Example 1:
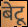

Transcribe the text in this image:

बेटू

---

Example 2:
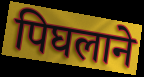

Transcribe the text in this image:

पिघलाने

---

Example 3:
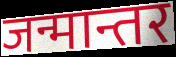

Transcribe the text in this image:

जन्मान्तर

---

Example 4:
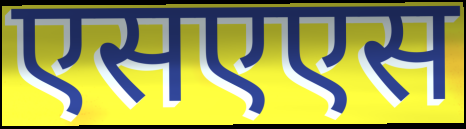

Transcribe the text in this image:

एसएएस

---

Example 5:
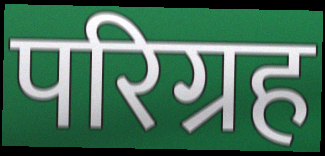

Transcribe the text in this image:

परिग्रह